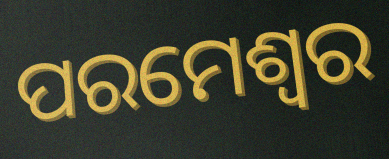
ପରମେଶ୍ବର